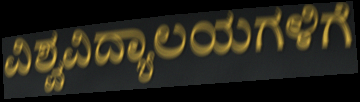
ವಿಶ್ವವಿದ್ಯಾಲಯಗಳಿಗೆ